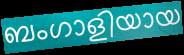
ബംഗാളിയായ